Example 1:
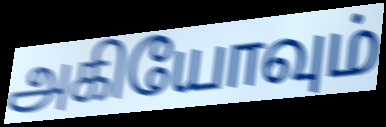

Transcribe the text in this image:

அகியோவும்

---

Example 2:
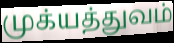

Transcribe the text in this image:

முக்யத்துவம்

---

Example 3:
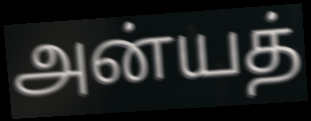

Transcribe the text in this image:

அன்யத்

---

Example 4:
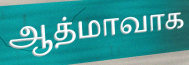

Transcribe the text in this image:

ஆத்மாவாக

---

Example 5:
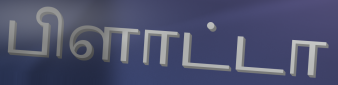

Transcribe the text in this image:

பிளாட்டா